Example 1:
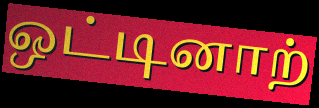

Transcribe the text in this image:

ஒட்டினாற்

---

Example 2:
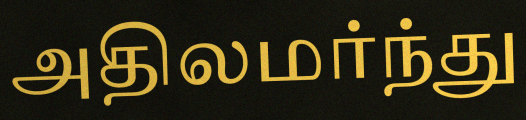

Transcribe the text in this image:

அதிலமர்ந்து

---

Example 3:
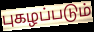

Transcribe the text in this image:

புகழப்படும்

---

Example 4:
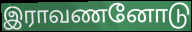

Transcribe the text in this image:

இராவணனோடு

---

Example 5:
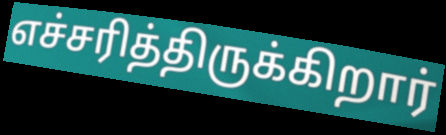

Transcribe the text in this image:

எச்சரித்திருக்கிறார்